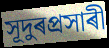
সূদুৰপ্ৰসাৰী